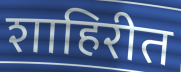
शाहिरीत